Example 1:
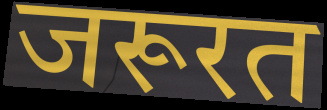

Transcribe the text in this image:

जरूरत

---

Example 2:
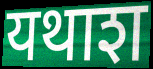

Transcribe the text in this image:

यथाश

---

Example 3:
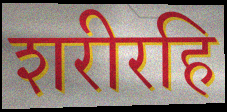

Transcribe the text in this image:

शरीरहि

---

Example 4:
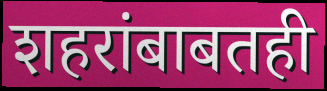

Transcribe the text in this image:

शहरांबाबतही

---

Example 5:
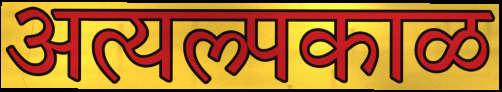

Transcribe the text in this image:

अत्यल्पकाळ